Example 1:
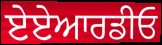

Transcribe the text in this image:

ਏਏਆਰਡੀਓ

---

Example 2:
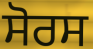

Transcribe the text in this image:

ਸੋਰਸ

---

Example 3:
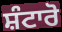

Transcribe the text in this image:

ਸ਼ੰਟਾਰੋ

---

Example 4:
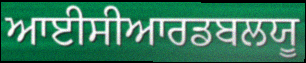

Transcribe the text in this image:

ਆਈਸੀਆਰਡਬਲਯੂ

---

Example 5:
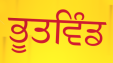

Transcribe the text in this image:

ਭੂਤਵਿੰਡ